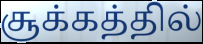
சூக்கத்தில்